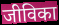
जीविका